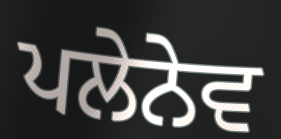
ਪਲੇਨੇਵ